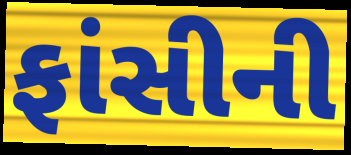
ફાંસીની